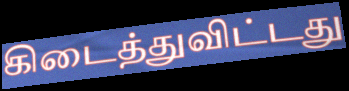
கிடைத்துவிட்டது